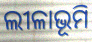
ଲୀଳାଭୂମି